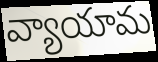
వ్యాయామ